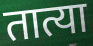
तात्या